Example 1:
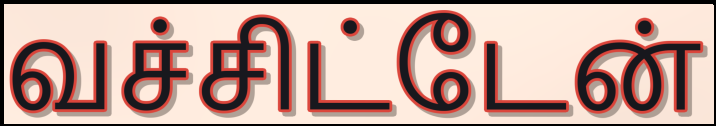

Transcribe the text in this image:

வச்சிட்டேன்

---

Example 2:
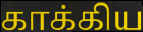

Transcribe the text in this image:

காக்கிய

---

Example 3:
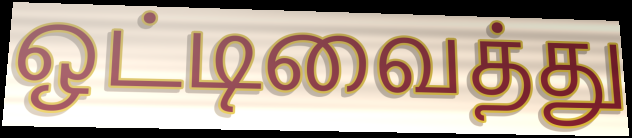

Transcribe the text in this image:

ஒட்டிவைத்து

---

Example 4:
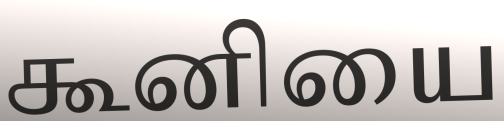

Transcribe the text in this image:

கூனியை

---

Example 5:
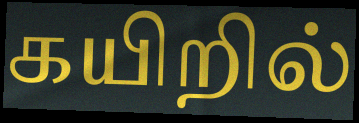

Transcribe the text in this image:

கயிறில்